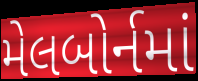
મેલબોર્નમાં